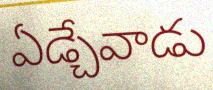
ఏడ్చేవాడు